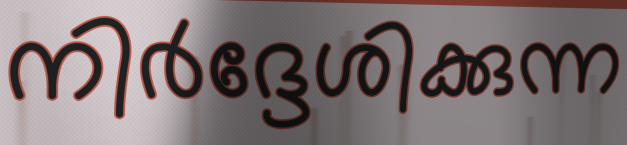
നിർദ്ദേശിക്കുന്ന